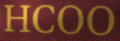
HCOO